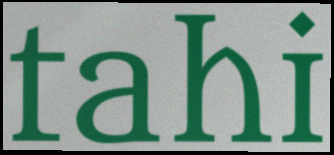
tahi